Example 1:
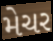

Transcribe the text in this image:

મેચર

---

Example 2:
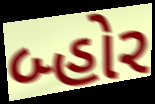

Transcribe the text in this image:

બ્હોર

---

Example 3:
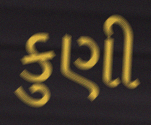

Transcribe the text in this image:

કુણી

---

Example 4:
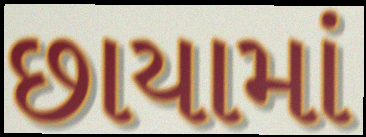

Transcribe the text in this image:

છાયામાં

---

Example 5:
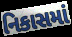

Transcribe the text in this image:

નિકાસમાં